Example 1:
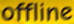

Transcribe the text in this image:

offline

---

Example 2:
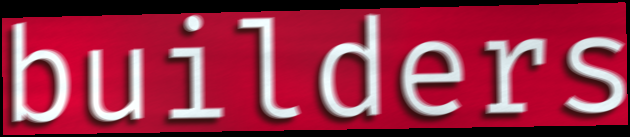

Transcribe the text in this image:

builders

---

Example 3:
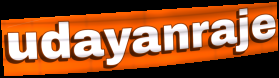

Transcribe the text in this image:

udayanraje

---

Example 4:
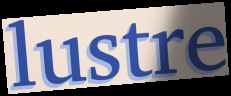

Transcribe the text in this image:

lustre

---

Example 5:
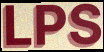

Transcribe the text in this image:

LPS